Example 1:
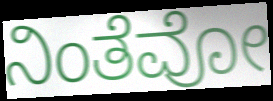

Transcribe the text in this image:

ನಿಂತೆವೋ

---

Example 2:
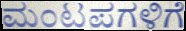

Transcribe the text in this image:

ಮಂಟಪಗಳಿಗೆ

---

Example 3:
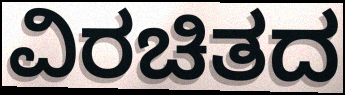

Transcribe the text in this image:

ವಿರಚಿತದ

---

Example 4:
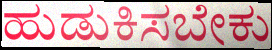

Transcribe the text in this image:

ಹುಡುಕಿಸಬೇಕು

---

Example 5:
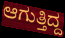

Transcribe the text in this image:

ಆಗುತ್ತಿದ್ದ